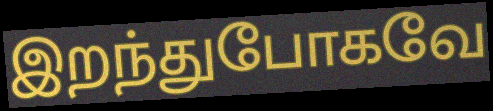
இறந்துபோகவே